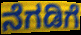
ನೆಗಡಿಗೆ